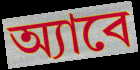
অ্যাবে